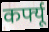
कर्फ्यू